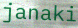
janaki